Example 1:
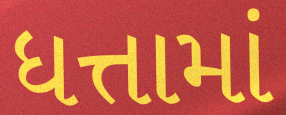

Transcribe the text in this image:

ધત્તામાં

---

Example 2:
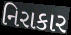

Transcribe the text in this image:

નિરાકાર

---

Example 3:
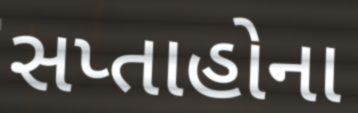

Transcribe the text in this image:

સપ્તાહોના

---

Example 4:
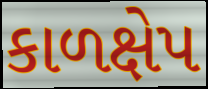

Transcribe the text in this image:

કાળક્ષેપ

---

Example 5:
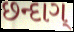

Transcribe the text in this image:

છન્દાગ્